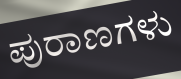
ಪುರಾಣಗಳು